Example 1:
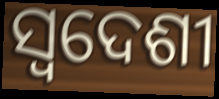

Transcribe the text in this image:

ସ୍ଵଦେଶୀ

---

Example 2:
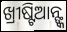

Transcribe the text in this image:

ଖ୍ରୀଷ୍ଟିଆନ୍ଙ୍କ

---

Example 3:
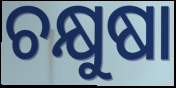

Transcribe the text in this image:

ଚକ୍ଷୁଷା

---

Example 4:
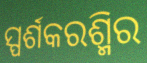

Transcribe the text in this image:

ସ୍ପର୍ଶକରଶ୍ମିର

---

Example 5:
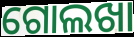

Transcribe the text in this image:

ଗୋଲଖା